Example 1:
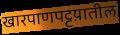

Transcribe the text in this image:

खारपाणपट्टय़ातील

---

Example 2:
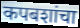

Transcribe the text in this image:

कपबशांचा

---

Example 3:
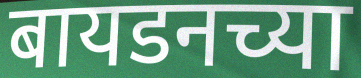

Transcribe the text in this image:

बायडनच्या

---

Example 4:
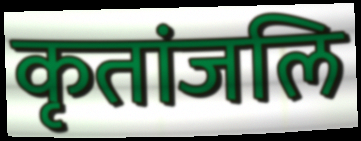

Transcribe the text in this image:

कृतांजलि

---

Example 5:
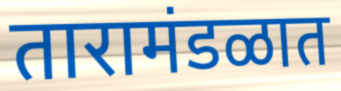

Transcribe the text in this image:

तारामंडळात